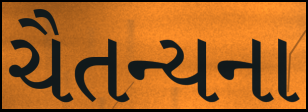
ચૈતન્યના